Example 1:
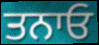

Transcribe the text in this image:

ਤਨਾਓ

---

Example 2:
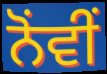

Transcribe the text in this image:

ਨੋਂਵੀਂ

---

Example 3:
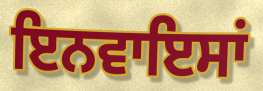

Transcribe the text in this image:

ਇਨਵਾਇਸਾਂ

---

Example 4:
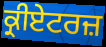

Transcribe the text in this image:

ਕ੍ਰੀਏਟਰਜ਼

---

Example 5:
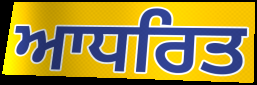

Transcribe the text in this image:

ਆਧਰਿਤ